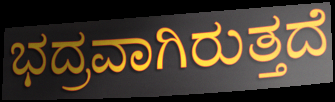
ಭದ್ರವಾಗಿರುತ್ತದೆ